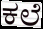
ಕಲೆ